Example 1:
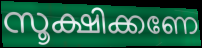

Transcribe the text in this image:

സൂക്ഷിക്കണേ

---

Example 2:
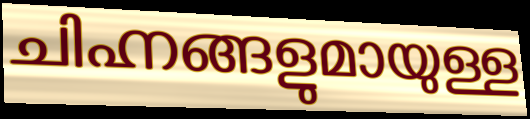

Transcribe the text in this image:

ചിഹ്നങ്ങളുമായുള്ള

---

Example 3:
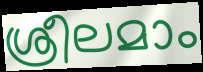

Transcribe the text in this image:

ശ്രീലമാം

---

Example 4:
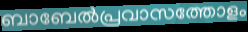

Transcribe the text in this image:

ബാബേൽപ്രവാസത്തോളം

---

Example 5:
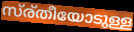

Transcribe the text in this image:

സ്ര്തീയോടുള്ള